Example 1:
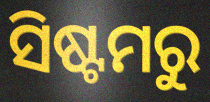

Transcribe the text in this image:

ସିଷ୍ଟମରୁ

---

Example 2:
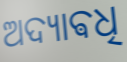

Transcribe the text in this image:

ଅଦ୍ୟାଵଧି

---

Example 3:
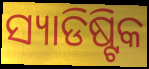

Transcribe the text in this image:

ସ୍ୟାଡିଷ୍ଟିକ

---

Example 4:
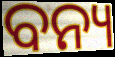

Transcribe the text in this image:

ବନ୍ୟ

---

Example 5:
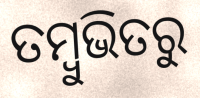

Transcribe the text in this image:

ତମ୍ବୁଭିତରୁ